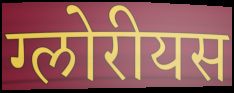
ग्लोरीयस